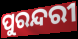
ପୁରନ୍ଦରୀ